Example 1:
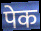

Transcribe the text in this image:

पेक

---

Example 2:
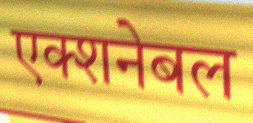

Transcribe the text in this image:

एक्शनेबल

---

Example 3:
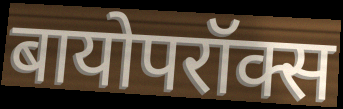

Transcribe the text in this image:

बायोपरॉक्स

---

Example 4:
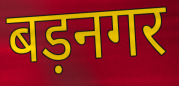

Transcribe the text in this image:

बड़नगर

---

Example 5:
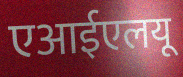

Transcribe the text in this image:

एआईएलयू